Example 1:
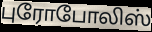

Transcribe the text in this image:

புரோபோலிஸ்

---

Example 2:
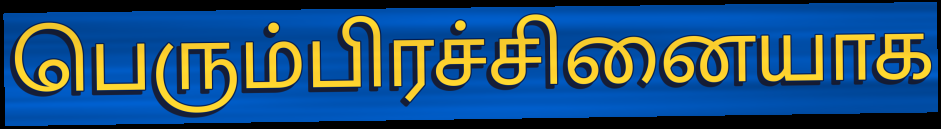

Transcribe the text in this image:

பெரும்பிரச்சினையாக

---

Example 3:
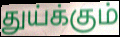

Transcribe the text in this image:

துய்க்கும்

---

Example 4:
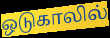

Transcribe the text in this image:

ஒடுகாலில்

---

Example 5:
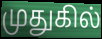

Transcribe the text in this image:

முதுகில்